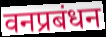
वनप्रबंधन